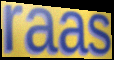
raas